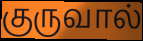
குருவால்